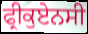
ਫ੍ਰੀਕੁਏਨਸੀ